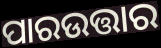
ପାରଉତ୍ତାର